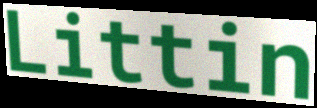
Littin